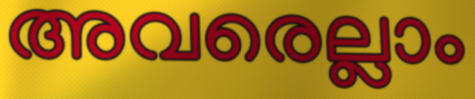
അവരെല്ലാം